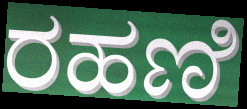
ರಹಣಿ